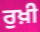
ਰੁਖ਼ੀ